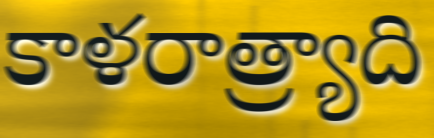
కాళరాత్ర్యాది